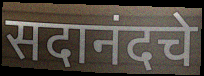
सदानंदचे